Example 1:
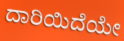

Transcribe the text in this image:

ದಾರಿಯಿದೆಯೇ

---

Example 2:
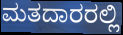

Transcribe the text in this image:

ಮತದಾರರಲ್ಲಿ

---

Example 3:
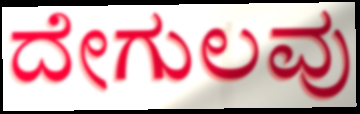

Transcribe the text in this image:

ದೇಗುಲವು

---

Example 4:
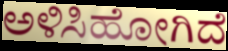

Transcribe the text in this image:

ಅಳಿಸಿಹೋಗಿದೆ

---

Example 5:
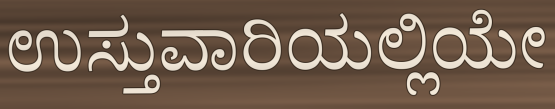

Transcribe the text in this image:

ಉಸ್ತುವಾರಿಯಲ್ಲಿಯೇ